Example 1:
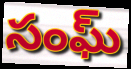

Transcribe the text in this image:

సంఘ్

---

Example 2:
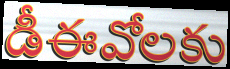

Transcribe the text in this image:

డీఈవోలకు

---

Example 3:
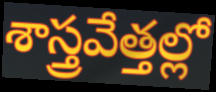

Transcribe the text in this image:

శాస్త్రవేత్తల్లో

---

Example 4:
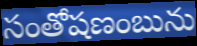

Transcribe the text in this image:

సంతోషణంబును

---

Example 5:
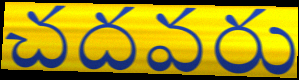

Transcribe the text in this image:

చదవరు